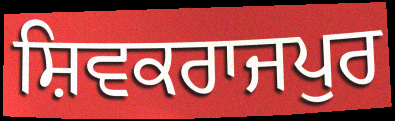
ਸ਼ਿਵਕਰਾਜਪੁਰ